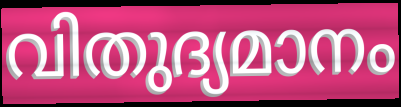
വിതുദ്യമാനം